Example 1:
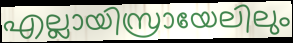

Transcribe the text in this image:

എല്ലായിസ്രായേലിലും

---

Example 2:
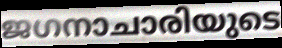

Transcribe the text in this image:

ജഗനാചാരിയുടെ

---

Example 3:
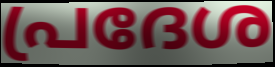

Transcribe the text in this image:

പ്രദേശ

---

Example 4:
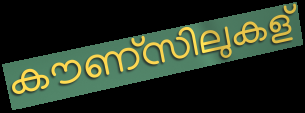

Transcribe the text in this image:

കൗണ്സിലുകള്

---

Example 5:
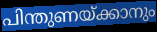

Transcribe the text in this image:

പിന്തുണയ്ക്കാനും